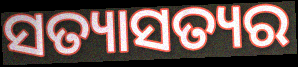
ସତ୍ୟାସତ୍ୟର